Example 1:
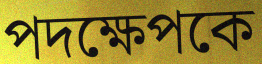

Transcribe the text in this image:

পদক্ষেপকে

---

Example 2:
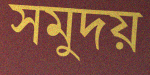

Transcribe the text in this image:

সমুদয়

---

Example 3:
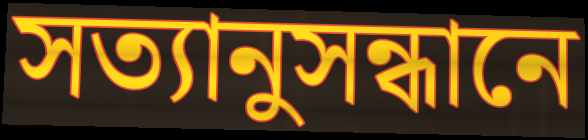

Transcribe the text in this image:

সত্যানুসন্ধানে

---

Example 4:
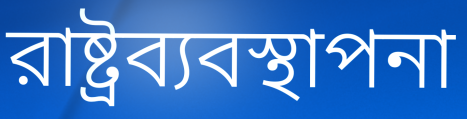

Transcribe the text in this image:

রাষ্ট্রব্যবস্থাপনা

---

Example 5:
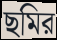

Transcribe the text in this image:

ছমির